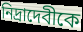
নিদ্রাদেবীকে